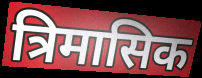
त्रिमासिक